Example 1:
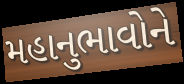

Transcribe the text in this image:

મહાનુભાવોને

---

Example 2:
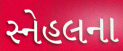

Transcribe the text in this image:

સ્નેહલના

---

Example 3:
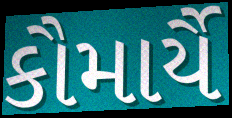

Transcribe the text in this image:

કૌમાર્યૈ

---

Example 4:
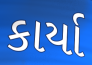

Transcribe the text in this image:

કાર્યા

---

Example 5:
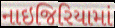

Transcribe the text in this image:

નાઇજિરિયામાં